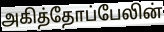
அகித்தோப்பேலின்